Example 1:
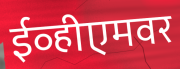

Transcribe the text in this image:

ईव्हीएमवर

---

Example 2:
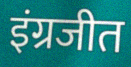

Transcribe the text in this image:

इंग्रजीत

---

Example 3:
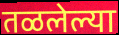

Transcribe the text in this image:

तळलेल्या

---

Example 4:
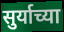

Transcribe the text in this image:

सुर्याच्या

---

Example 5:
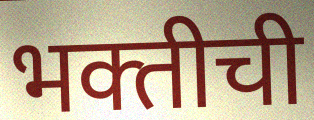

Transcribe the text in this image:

भक्‍तीची